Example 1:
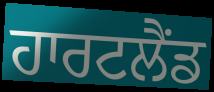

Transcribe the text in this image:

ਹਾਰਟਲੈਂਡ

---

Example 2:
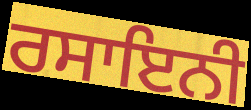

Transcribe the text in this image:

ਰਸਾਇਨੀ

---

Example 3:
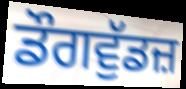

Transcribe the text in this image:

ਡੌਗਵੁੱਡਜ਼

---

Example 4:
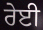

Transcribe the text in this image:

ਰੇਈ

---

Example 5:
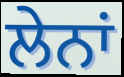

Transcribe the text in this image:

ਲੇਨਾਂ